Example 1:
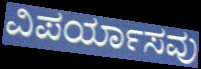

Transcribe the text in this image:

ವಿಪರ್ಯಾಸವು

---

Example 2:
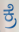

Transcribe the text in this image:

ಕ್ರೆ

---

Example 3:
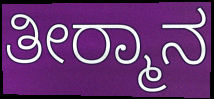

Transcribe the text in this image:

ತೀರ‍್ಮಾನ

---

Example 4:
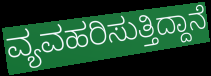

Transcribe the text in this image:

ವ್ಯವಹರಿಸುತ್ತಿದ್ದಾನೆ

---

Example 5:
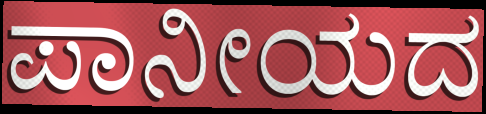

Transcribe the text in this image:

ಪಾನೀಯದ